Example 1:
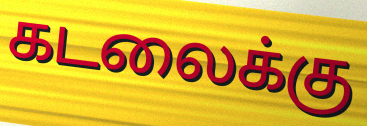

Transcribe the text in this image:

கடலைக்கு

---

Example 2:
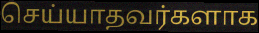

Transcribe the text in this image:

செய்யாதவர்களாக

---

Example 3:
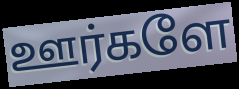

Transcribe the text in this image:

ஊர்களே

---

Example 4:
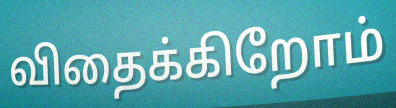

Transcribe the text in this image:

விதைக்கிறோம்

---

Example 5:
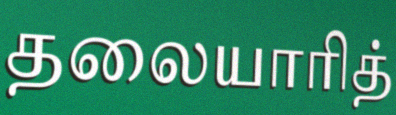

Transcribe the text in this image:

தலையாரித்